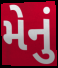
મેનું